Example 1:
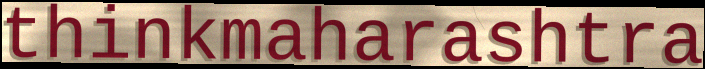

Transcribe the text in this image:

thinkmaharashtra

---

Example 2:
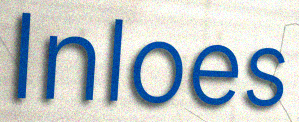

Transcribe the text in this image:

Inloes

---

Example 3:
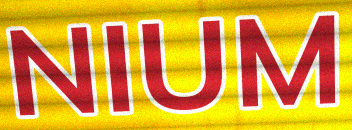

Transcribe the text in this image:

NIUM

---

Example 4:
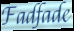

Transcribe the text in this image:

Fadfade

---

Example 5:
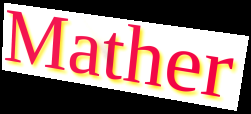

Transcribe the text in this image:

Mather